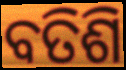
ବତିଶି